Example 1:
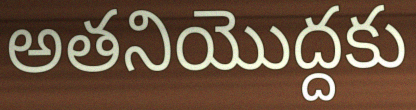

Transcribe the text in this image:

అతనియొద్దకు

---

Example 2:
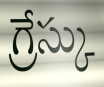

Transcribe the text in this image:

గ్రేస్కు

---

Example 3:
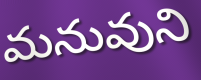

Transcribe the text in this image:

మనువుని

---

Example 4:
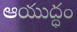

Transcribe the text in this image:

ఆయుద్ధం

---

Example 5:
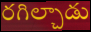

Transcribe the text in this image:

రగిల్చాడు